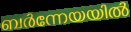
ബർന്നേയയിൽ